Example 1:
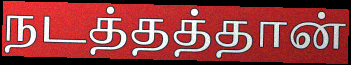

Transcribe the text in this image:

நடத்தத்தான்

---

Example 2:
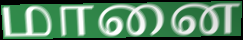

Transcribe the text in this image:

மானை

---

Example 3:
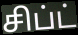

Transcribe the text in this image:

சிப்ட்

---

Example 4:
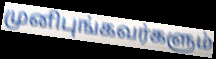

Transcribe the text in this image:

முனிபுங்கவர்களும்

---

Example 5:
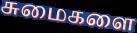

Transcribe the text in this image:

சுமைகளை